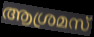
ആശ്രമസ്